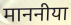
माननीया